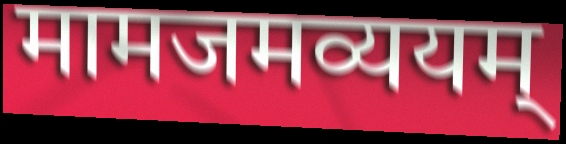
मामजमव्ययम्